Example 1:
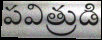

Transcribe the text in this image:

పవిత్రుడి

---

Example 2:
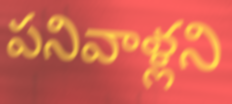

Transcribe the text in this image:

పనివాళ్లని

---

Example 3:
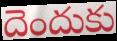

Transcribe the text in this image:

దెందుకు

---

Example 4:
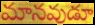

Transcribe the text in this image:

మానవుడూ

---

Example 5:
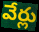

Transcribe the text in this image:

వేర్లు